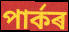
পাৰ্কৰ